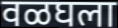
वळघला